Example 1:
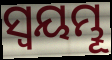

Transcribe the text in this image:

ସ୍ଵୟମ୍ଭୂ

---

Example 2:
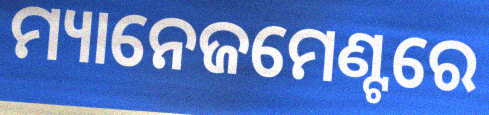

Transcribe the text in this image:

ମ୍ୟାନେଜମେଣ୍ଟରେ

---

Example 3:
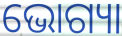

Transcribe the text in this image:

ଭୋଗ୍ୟା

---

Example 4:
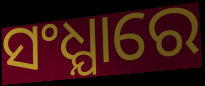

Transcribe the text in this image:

ସଂଧ୍ଯାରେ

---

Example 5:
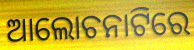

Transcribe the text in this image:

ଆଲୋଚନାଟିରେ